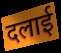
दलाई